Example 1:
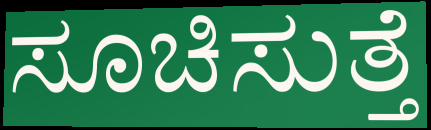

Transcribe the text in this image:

ಸೂಚಿಸುತ್ತೆ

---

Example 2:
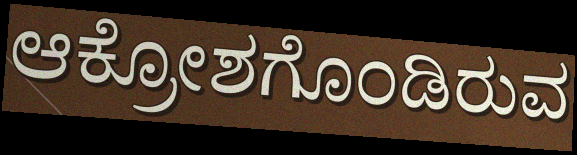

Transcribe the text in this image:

ಆಕ್ರೋಶಗೊಂಡಿರುವ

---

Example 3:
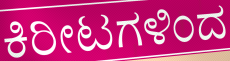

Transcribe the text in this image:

ಕಿರೀಟಗಳಿಂದ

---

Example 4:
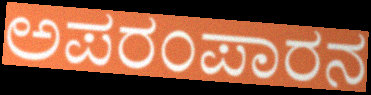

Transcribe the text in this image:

ಅಪರಂಪಾರನ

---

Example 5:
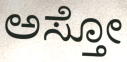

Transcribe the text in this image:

ಅಸ್ತೋ